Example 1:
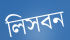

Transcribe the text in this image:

লিসবন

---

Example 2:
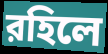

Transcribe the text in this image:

রহিলে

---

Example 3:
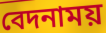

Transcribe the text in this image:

বেদনাময়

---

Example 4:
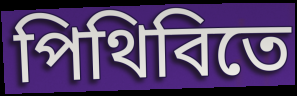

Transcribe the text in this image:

পিথিবিতে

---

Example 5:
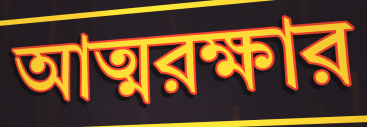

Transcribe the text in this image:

আত্মরক্ষার